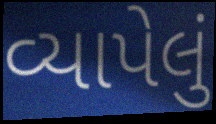
વ્યાપેલું